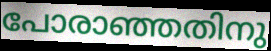
പോരാഞ്ഞതിനു